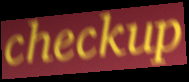
checkup